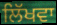
ਲਿੱਖਵਾ